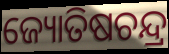
ଜ୍ୟୋତିଷଚନ୍ଦ୍ର